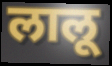
लालू